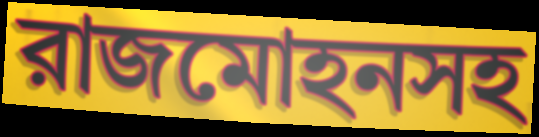
রাজমোহনসহ